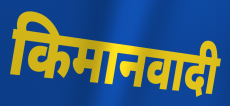
किमानवादी